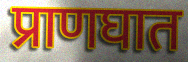
प्राणघात